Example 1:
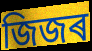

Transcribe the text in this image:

জিজৰ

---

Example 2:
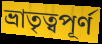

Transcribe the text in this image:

ভ্ৰাতৃত্বপূৰ্ণ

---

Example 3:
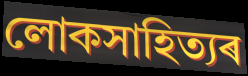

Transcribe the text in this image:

লোকসাহিত্যৰ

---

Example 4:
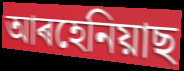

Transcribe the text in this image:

আৰহেনিয়াছ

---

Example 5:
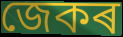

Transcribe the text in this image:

জেকৰ